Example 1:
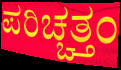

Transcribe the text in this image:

ಪರಿಚ್ಚತ್ತಂ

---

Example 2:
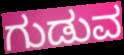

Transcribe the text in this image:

ಗುಡುವ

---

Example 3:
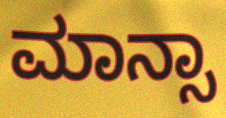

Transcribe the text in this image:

ಮಾನ್ಸಾ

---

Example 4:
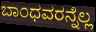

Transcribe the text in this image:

ಬಾಂಧವರನ್ನೆಲ್ಲ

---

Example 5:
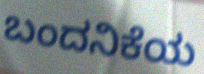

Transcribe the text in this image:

ಬಂದನಿಕೆಯ